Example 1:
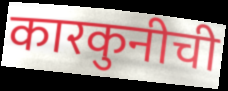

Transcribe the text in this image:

कारकुनीची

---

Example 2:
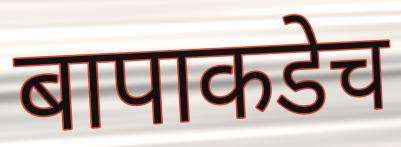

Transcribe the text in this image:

बापाकडेच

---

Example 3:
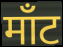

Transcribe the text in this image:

माँट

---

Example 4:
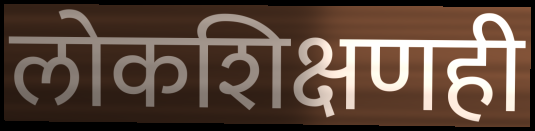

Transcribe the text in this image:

लोकशिक्षणही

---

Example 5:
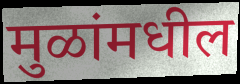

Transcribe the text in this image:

मुळांमधील